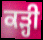
ਕੜ੍ਹੀ